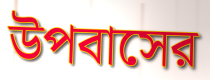
উপবাসের